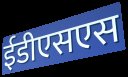
ईडीएसएस